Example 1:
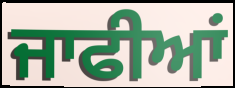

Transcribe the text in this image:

ਜਾਫੀਆਂ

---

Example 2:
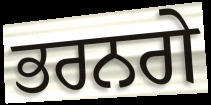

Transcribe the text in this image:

ਭਰਨਗੇ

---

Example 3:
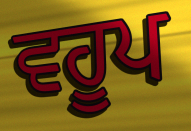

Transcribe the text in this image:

ਵਹੂਪ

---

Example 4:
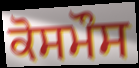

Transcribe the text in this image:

ਕੋਸਮੌਸ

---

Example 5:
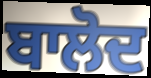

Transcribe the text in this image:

ਬਾਲੋਦ